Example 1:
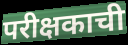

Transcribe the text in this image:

परीक्षकाची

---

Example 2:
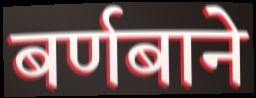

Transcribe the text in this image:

बर्णबाने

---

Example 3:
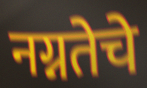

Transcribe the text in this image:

नग्नतेचे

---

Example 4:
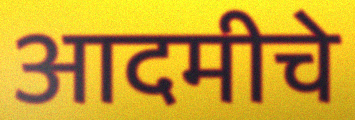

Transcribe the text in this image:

आदमीचे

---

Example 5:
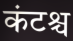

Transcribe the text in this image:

कंटश्च